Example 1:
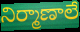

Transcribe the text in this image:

నిర్మాణాలే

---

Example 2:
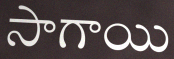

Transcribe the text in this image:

సాగాయి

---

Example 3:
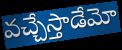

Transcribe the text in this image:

వచ్చేస్తాడేమో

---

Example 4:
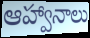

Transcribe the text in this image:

ఆహ్వానాలు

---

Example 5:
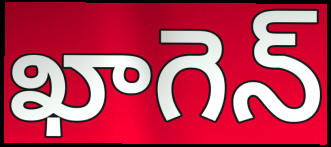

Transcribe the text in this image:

ఖాగెన్